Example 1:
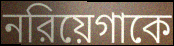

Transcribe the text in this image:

নরিয়েগাকে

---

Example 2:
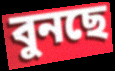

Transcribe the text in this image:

বুনছে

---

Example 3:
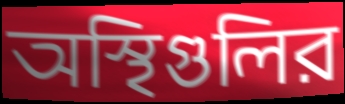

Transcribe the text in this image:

অস্থিগুলির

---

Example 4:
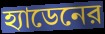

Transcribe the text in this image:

হ্যাডেনের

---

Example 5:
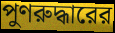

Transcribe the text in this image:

পুণরুদ্ধারের